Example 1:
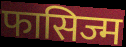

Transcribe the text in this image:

फासिज्म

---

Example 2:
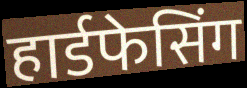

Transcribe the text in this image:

हार्डफेसिंग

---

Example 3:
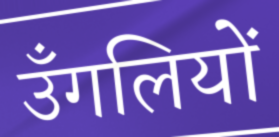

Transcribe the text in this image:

उँगलियों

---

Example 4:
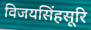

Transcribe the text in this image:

विजयसिंहसूरि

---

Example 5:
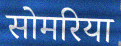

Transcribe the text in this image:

सोमरिया